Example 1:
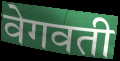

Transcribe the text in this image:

वेगवती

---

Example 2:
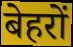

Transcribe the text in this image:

बेहरों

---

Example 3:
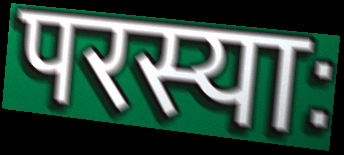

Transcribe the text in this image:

परस्याः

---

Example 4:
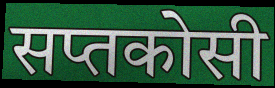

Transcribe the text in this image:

सप्तकोसी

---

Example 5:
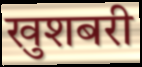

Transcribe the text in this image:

खुशबरी